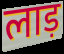
लाड़